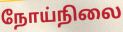
நோய்நிலை